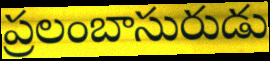
ప్రలంబాసురుడు